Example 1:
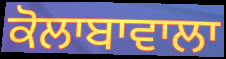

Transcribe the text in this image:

ਕੋਲਾਬਾਵਾਲਾ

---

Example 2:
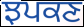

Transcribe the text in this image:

ਝਪਕਣ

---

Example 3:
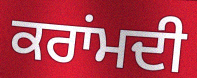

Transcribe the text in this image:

ਕਰਾਂਮਦੀ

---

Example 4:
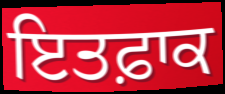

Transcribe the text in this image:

ਇਤਫ਼ਾਕ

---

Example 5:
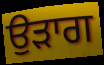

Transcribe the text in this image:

ਉੜਾਗ